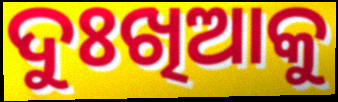
ଦୁଃଖିଆକୁ